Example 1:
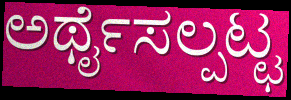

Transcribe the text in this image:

ಅರ್ಥೈಸಲ್ಪಟ್ಟ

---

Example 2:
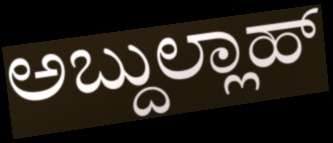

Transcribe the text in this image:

ಅಬ್ದುಲ್ಲಾಹ್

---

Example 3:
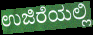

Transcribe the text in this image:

ಉಜಿರೆಯಲ್ಲಿ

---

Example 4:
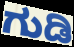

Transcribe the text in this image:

ಗುಡಿ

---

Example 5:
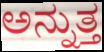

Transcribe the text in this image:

ಅನ್ನುತ್ತ